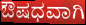
ಔಷಧವಾಗಿ